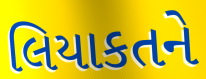
લિયાકતને